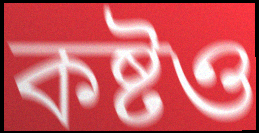
কষ্টও